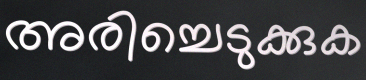
അരിച്ചെടുക്കുക